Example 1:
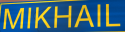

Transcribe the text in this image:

MIKHAIL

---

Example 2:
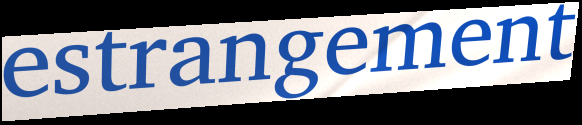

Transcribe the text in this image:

estrangement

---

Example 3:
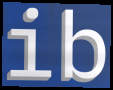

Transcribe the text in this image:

ib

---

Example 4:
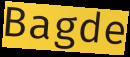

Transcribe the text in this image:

Bagde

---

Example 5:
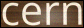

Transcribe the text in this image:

cern